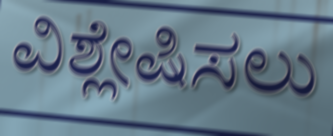
ವಿಶ್ಲೇಷಿಸಲು